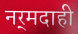
नर्मदाही